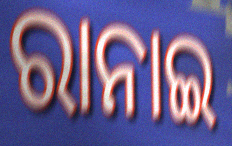
ରାନାଇ